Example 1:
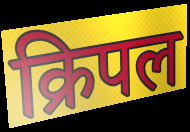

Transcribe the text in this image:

क्रिपल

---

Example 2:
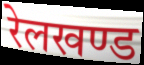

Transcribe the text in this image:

रेलखण्ड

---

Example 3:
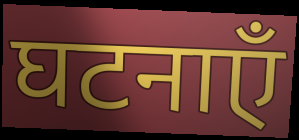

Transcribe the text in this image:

घटनाएँ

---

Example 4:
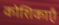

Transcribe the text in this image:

कोशिकाएँ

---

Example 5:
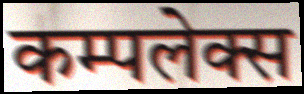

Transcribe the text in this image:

कम्पलेक्स